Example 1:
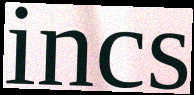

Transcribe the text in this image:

incs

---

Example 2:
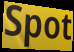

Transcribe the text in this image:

Spot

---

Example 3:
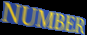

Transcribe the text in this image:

NUMBER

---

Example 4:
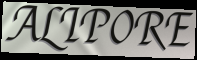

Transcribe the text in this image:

ALIPORE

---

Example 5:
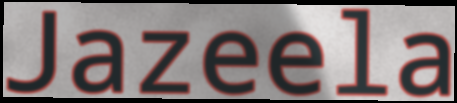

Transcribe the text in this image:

Jazeela